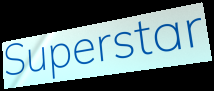
Superstar